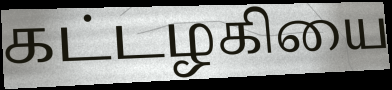
கட்டழகியை